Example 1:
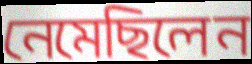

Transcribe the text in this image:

নেমেছিলেন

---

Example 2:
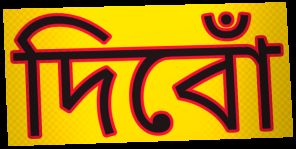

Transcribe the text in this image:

দিবোঁ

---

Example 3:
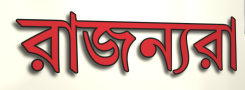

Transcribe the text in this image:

রাজন্যরা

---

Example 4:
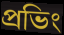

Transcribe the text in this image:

প্রভিং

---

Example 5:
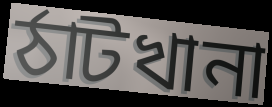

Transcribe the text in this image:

ঠাটখানা